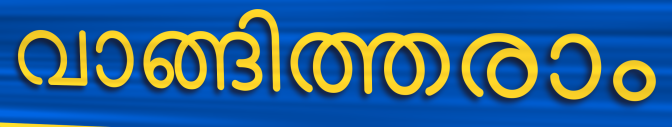
വാങ്ങിത്തരാം